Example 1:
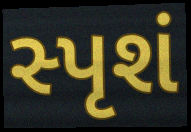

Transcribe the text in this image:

સ્પૃશં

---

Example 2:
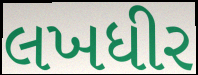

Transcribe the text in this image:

લખધીર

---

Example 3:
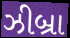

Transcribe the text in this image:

ઝીબ્રા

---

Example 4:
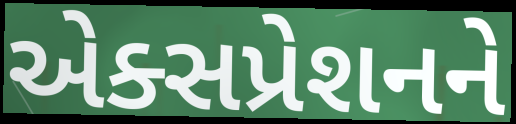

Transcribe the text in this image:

એક્સપ્રેશનને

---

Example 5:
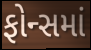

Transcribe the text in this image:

ફોન્સમાં